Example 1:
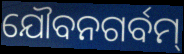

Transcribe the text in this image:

ଯୌବନଗର୍ବମ୍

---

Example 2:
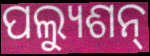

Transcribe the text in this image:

ପଲ୍ୟୁଶନ୍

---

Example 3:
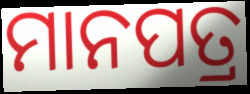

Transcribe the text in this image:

ମାନପତ୍ର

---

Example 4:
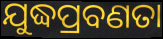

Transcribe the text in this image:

ଯୁଦ୍ଧପ୍ରବଣତା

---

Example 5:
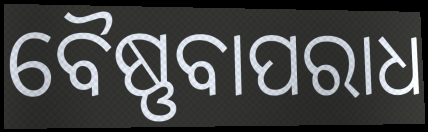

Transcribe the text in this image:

ବୈଷ୍ଣବାପରାଧ